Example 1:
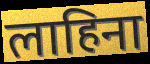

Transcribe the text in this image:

लाहिना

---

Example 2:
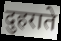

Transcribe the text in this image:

दुहराते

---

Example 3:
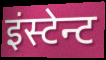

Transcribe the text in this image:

इंस्टेन्ट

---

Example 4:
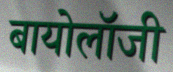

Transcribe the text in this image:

बायोलॉजी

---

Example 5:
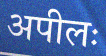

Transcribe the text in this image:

अपीलः